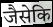
जैसेकि